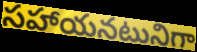
సహాయనటునిగా